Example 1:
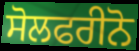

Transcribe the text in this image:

ਸੋਲਫਰੀਨੋ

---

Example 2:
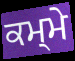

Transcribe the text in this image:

ਕਮ੍ਮੇ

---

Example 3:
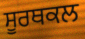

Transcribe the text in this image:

ਸੂਰਥਕਲ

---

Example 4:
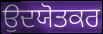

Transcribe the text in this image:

ਉਦਯੋਤਕਰ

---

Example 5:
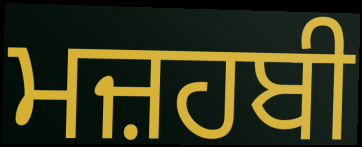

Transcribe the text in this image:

ਮਜ਼ਹਬੀ